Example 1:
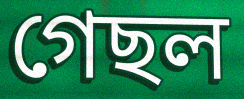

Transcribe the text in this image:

গেছল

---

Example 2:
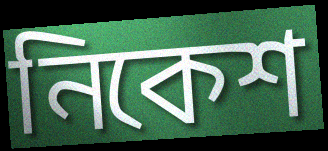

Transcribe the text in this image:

নিকেশ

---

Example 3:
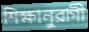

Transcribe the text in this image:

শিক্ষানুরাগী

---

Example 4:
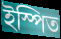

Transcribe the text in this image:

ইস্পিত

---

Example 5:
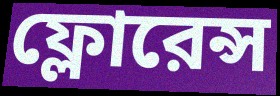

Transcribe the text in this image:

ফ্লোরেন্স